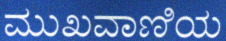
ಮುಖವಾಣಿಯ